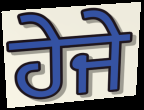
ਹੇਜੇ